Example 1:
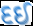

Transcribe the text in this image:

દઈ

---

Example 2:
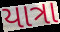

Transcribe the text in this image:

યાત્રા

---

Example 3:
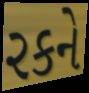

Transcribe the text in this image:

રકને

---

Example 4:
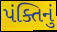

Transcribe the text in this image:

પંક્તિનું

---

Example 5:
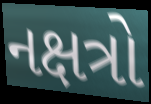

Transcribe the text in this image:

નક્ષત્રો